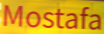
Mostafa